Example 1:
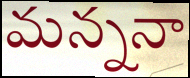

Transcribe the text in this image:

మన్ననా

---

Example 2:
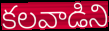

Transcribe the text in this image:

కలవాడిని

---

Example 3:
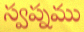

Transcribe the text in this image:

స్వప్నము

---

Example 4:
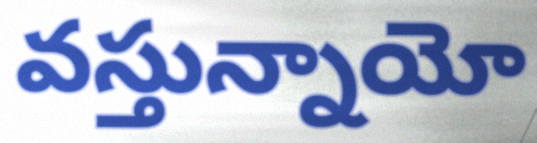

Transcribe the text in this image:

వస్తున్నాయో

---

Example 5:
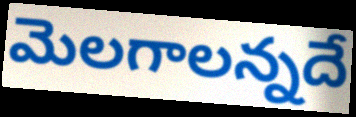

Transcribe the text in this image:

మెలగాలన్నదే